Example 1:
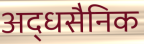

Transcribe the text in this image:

अद्धसैनिक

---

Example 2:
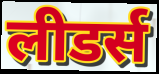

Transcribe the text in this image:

लीडर्स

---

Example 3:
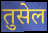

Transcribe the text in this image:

तुसेल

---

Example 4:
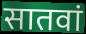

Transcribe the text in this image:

सातवां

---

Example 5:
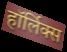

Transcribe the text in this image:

हॉर्लिक्स